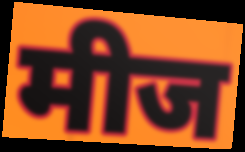
मीज